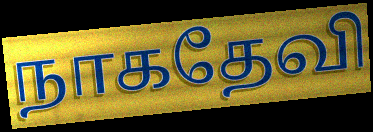
நாகதேவி